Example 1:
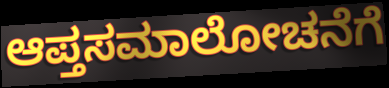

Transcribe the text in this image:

ಆಪ್ತಸಮಾಲೋಚನೆಗೆ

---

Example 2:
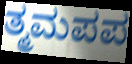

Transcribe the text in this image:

ತ್ಮಮಪಪ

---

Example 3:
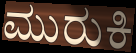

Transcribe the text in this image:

ಮುರುಕಿ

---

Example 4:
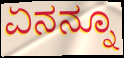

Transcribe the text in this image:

ಏನನ್ನೂ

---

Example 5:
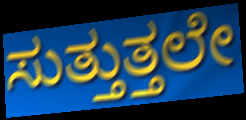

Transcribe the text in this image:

ಸುತ್ತುತ್ತಲೇ